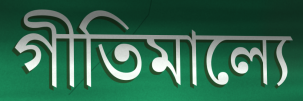
গীতিমাল্যে